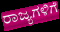
ರಾಜ್ಯಗಳಿಗೆ